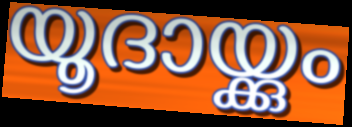
യൂദായ്ക്കും